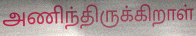
அணிந்திருக்கிறாள்